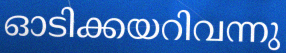
ഓടിക്കയറിവന്നു